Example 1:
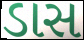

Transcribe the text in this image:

ડાસ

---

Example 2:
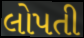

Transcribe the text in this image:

લોપતી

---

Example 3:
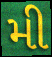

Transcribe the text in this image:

મી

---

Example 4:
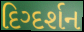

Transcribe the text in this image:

દિગ્દર્શન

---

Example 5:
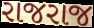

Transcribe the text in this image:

રાજરાજ